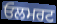
ਓਲਮਰਟ